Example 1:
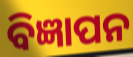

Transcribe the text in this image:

ବିଜ୍ଞାପନ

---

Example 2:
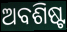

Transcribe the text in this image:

ଅବଶିଷ୍ଟ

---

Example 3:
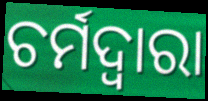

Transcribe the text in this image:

ଚର୍ମଦ୍ଵାରା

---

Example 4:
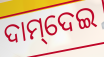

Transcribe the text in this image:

ଦାମ୍‌ଦେଇ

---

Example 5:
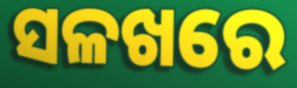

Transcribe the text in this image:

ସଳଖରେ